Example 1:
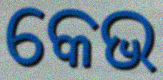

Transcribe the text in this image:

କେଭ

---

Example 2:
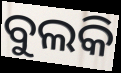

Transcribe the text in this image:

ବୁଲକି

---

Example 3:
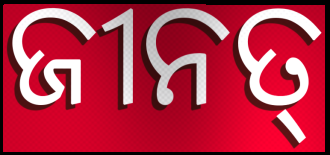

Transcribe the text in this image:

ଜୀନତ୍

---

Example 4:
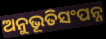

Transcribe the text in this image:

ଅନୁଭୂତିସଂପନ୍ନ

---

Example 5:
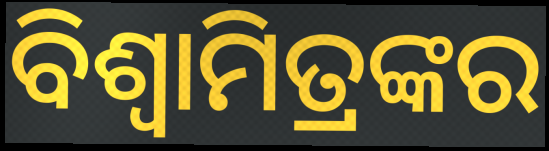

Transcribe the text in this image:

ବିଶ୍ବାମିତ୍ରଙ୍କର